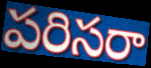
పరిసరా